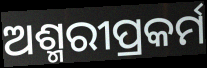
ଅଶ୍ମରୀପ୍ରକର୍ମ